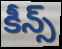
కీన్స్